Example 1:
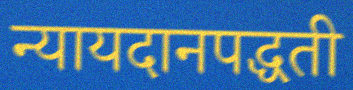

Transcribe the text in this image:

न्यायदानपद्धती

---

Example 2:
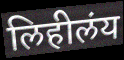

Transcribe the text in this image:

लिहीलंय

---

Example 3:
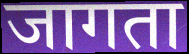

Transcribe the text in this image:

जागता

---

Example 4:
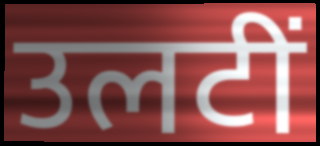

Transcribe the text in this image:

उलटीं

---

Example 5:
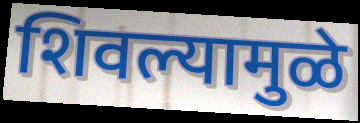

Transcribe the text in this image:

शिवल्यामुळे